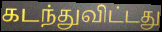
கடந்துவிட்டது